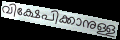
വിക്ഷേപിക്കാനുള്ള